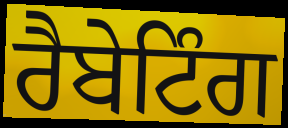
ਰੈਬੇਟਿੰਗ